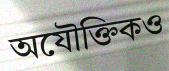
অযৌক্তিকও